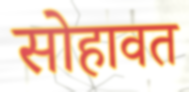
सोहावत